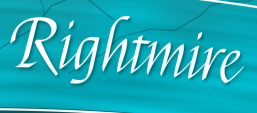
Rightmire